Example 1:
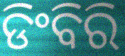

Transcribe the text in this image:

ଡିଂବିରି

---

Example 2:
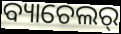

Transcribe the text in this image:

ବ୍ୟାଚେଲର୍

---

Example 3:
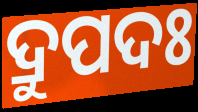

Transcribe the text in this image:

ଦ୍ରୁପଦଃ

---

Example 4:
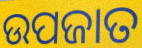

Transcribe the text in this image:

ଉପଜାତ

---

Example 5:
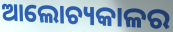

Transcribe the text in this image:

ଆଲୋଚ୍ୟକାଳର